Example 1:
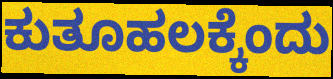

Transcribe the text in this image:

ಕುತೂಹಲಕ್ಕೆಂದು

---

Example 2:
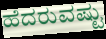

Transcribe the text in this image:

ಹೆದರುವಷ್ಟು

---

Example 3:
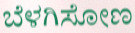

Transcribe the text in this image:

ಬೆಳಗಿಸೋಣ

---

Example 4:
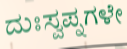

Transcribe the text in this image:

ದುಃಸ್ವಪ್ನಗಳೇ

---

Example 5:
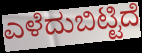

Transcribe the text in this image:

ಎಳೆದುಬಿಟ್ಟಿದೆ